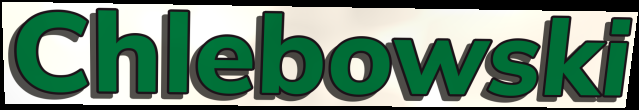
Chlebowski